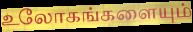
உலோகங்களையும்